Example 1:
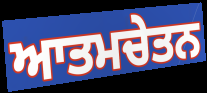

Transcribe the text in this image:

ਆਤਮਚੇਤਨ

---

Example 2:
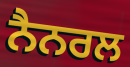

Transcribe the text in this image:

ਨੈਨਰਲ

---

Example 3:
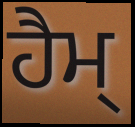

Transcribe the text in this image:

ਹੈਮ੍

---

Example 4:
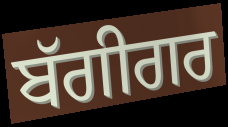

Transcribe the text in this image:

ਬੱਗੀਗਰ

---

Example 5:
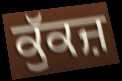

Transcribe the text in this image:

ਕੁੱਕਜ਼